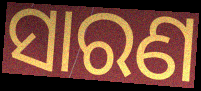
ସାରଣ